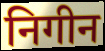
निगीन